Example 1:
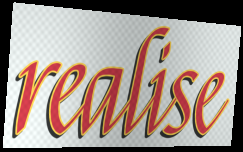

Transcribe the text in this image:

realise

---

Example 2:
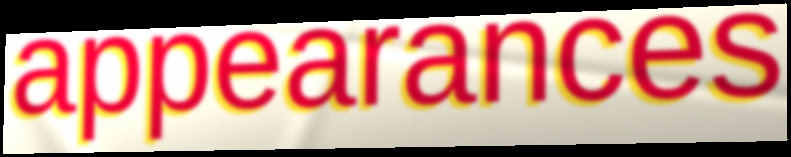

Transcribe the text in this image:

appearances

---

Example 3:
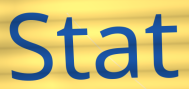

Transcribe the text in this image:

Stat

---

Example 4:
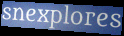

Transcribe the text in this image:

snexplores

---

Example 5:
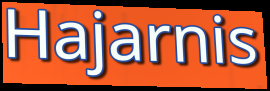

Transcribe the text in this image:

Hajarnis